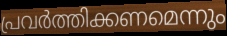
പ്രവർത്തിക്കണമെന്നും